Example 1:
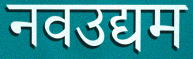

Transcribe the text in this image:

नवउद्यम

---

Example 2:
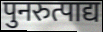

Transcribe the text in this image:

पुनरुत्पाद्य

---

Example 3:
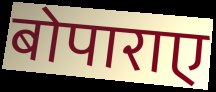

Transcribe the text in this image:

बोपाराए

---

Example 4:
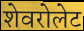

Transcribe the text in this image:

शेवरोलेट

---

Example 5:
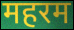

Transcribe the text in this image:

महरम